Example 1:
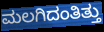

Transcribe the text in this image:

ಮಲಗಿದಂತಿತ್ತು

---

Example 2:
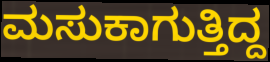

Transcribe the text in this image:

ಮಸುಕಾಗುತ್ತಿದ್ದ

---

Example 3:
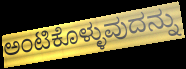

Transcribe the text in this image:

ಅಂಟಿಕೊಳ್ಳುವುದನ್ನು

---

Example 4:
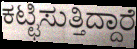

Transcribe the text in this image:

ಕಟ್ಟಿಸುತ್ತಿದ್ದಾರೆ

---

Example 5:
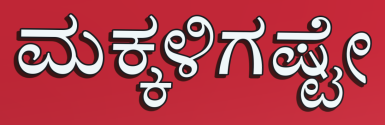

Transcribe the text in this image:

ಮಕ್ಕಳಿಗಷ್ಟೇ